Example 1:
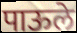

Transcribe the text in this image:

पाऊले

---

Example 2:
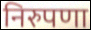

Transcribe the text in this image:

निरुपणा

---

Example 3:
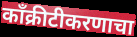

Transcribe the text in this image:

काँक्रीटीकरणाचा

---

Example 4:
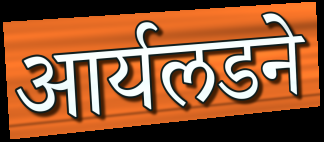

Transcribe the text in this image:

आर्यलडने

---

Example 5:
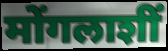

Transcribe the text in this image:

मोंगलाशीं